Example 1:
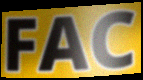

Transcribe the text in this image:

FAC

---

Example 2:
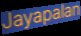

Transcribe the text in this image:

Jayapalan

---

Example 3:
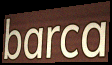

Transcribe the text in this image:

barca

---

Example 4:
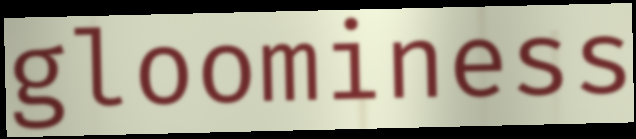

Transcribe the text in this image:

gloominess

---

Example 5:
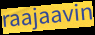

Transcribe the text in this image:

raajaavin